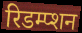
रिडम्प्शन